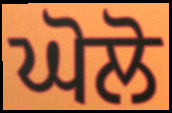
ਘੋਲੋ